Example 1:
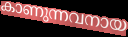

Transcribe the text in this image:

കാണുന്നവനായ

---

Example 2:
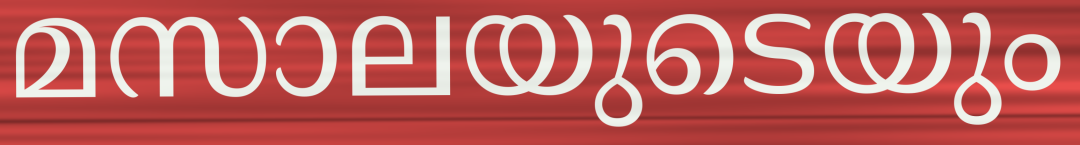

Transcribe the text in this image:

മസാലയുടെയും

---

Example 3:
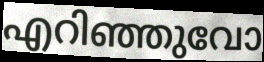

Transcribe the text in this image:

എറിഞ്ഞുവോ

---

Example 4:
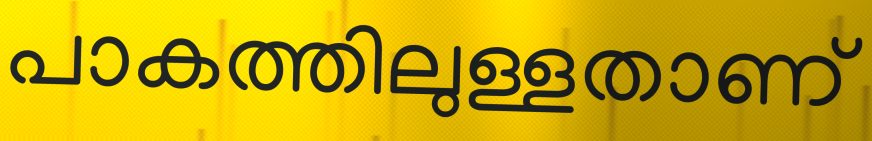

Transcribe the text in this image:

പാകത്തിലുള്ളതാണ്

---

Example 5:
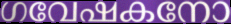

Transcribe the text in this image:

ഗവേഷകനോ